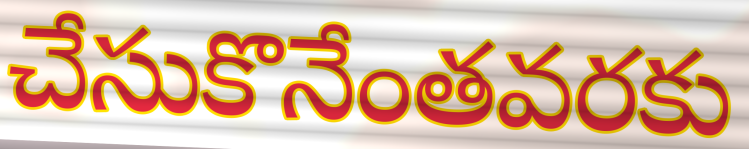
చేసుకొనేంతవరకు